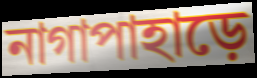
নাগাপাহাড়ে